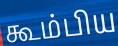
கூம்பிய